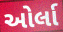
ઓર્લા